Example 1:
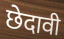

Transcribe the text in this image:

छेदावी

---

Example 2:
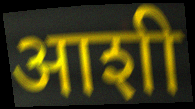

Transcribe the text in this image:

आशी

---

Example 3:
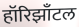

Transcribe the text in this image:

हॉरिझाँटल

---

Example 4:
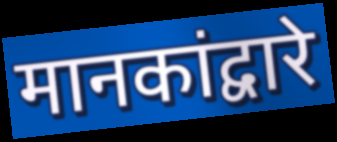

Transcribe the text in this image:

मानकांद्वारे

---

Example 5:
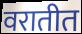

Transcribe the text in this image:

वरातीत